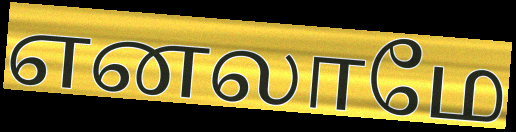
எனலாமே